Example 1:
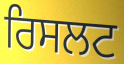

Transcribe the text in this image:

ਰਿਸਲਟ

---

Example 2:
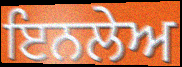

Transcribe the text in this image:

ਇਨਲੇਅ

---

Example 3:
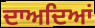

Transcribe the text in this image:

ਦਾਅਦਿਆਂ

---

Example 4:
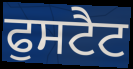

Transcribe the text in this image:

ਫੁਸਟੈਟ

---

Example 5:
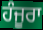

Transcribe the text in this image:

ਹੰਜੂਰਾ